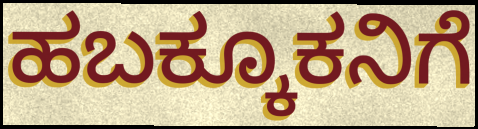
ಹಬಕ್ಕೂಕನಿಗೆ